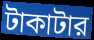
টাকাটার